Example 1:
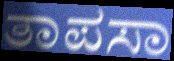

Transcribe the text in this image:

ತಾಪಸಾ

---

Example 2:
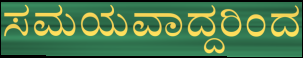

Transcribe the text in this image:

ಸಮಯವಾದ್ದರಿಂದ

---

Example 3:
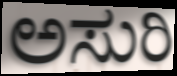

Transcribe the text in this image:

ಅಸುರಿ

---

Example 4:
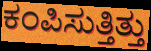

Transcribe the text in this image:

ಕಂಪಿಸುತ್ತಿತ್ತು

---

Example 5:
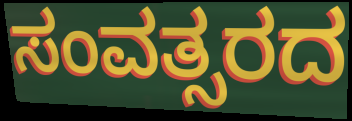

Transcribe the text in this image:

ಸಂವತ್ಸರದ